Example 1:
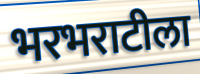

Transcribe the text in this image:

भरभराटीला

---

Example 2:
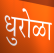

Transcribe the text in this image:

धुरोळा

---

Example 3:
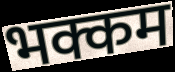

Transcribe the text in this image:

भक्‍कम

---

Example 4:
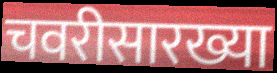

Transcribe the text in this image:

चवरीसारख्या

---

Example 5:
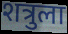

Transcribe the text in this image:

शत्रुला